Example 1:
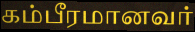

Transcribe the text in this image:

கம்பீரமானவர்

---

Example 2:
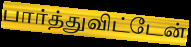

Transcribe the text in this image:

பார்த்துவிட்டேன்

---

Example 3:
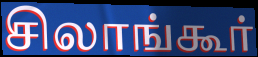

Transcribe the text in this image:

சிலாங்கூர்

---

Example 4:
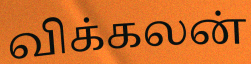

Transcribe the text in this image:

விக்கலன்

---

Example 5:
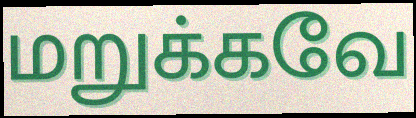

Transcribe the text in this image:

மறுக்கவே